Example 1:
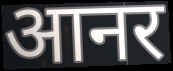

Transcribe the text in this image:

आनर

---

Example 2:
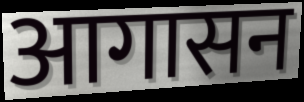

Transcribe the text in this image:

आगासन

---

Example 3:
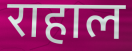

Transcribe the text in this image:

राहाल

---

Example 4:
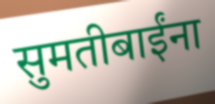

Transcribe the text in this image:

सुमतीबाईंना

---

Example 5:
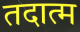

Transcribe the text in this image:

तदात्म